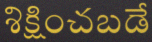
శిక్షించబడే